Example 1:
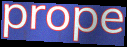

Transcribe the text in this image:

prope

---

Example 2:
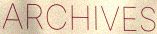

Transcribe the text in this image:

ARCHIVES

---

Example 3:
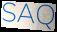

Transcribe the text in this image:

SAQ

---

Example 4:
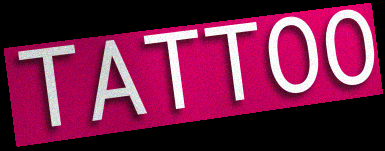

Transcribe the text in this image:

TATTOO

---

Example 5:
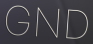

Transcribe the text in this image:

GND